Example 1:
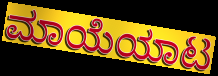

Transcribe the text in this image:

ಮಾಯೆಯಾಟ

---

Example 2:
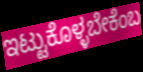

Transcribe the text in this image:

ಇಟ್ಟುಕೊಳ್ಳಬೇಕೆಂಬ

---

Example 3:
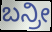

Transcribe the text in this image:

ಬನ್ರೀ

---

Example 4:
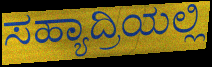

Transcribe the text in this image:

ಸಹ್ಯಾದ್ರಿಯಲ್ಲಿ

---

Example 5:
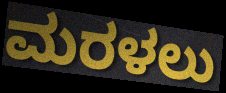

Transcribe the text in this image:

ಮರಳಲು